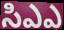
సిఎఎ